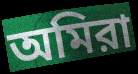
অমিরা